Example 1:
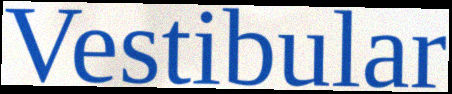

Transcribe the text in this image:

Vestibular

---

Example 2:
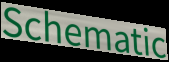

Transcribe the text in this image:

Schematic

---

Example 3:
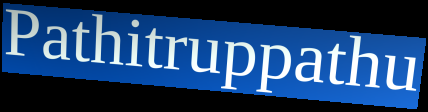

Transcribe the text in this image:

Pathitruppathu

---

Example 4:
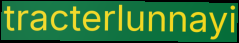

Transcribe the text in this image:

tracterlunnayi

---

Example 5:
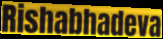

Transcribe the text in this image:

Rishabhadeva